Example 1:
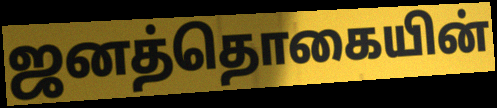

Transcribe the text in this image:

ஜனத்தொகையின்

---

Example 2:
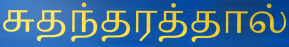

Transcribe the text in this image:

சுதந்தரத்தால்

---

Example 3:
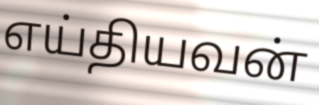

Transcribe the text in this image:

எய்தியவன்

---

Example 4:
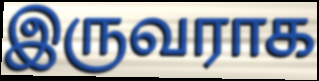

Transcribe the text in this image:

இருவராக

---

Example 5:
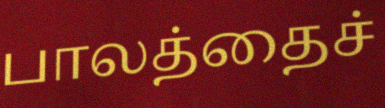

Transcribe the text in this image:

பாலத்தைச்